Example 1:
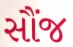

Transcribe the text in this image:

સૌંજ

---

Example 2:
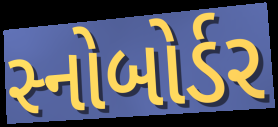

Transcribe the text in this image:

સ્નોબોર્ડર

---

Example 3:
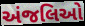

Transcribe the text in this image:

અંજલિઓ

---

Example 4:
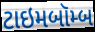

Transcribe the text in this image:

ટાઇમબૉમ્બ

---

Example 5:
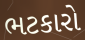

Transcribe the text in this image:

ભટકારો